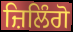
ਜ਼ਿਲਿੰਗੋ